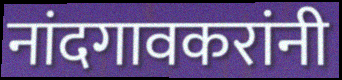
नांदगावकरांनी